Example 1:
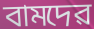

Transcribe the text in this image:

বামদেৱ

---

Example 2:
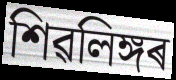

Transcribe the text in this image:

শিৱলিঙ্গৰ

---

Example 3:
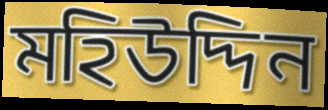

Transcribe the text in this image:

মহিউদ্দিন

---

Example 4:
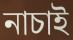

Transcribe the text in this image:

নাচাই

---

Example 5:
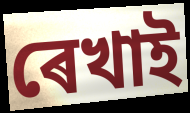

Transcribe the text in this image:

ৰেখাই